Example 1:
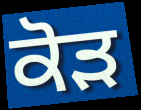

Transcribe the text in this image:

ਕੋੜ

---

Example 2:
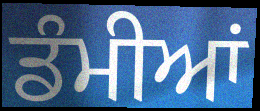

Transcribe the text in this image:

ਡੰਮੀਆਂ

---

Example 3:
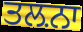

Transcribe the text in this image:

ਤਲ਼ਨਾ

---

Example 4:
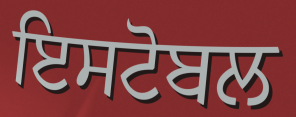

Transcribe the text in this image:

ਇਸਟੋਬਲ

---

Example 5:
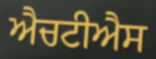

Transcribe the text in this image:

ਐਚਟੀਐਸ